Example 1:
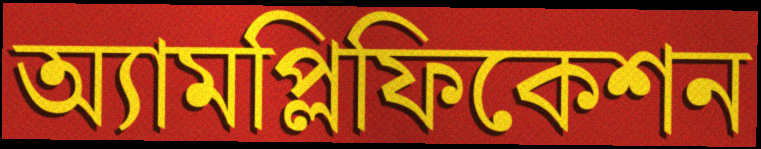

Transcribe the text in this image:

অ্যামপ্লিফিকেশন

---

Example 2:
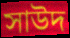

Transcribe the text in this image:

সাউদ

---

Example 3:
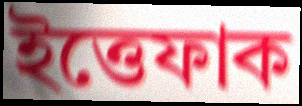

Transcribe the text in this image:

ইত্তেফাক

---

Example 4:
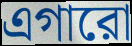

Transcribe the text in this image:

এগারো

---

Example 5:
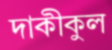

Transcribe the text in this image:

দাকীকুল